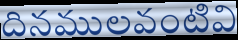
దినములవంటివి